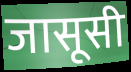
जासूसी